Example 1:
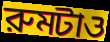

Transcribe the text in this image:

রুমটাও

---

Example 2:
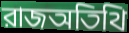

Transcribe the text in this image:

রাজঅতিথি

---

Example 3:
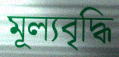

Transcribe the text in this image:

মূল্যবৃদ্ধি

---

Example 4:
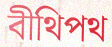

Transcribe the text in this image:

বীথিপথ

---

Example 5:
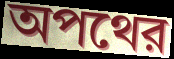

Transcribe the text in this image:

অপথের